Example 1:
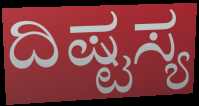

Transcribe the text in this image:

ದಿಷ್ಟಸ್ಯ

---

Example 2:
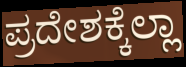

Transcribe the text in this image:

ಪ್ರದೇಶಕ್ಕೆಲ್ಲಾ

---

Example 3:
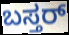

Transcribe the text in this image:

ಬಸ್ತರ್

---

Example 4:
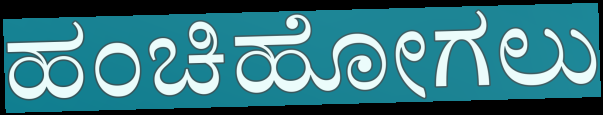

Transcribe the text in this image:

ಹಂಚಿಹೋಗಲು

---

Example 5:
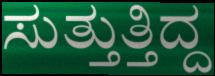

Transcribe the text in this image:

ಸುತ್ತುತ್ತಿದ್ದ